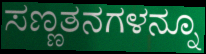
ಸಣ್ಣತನಗಳನ್ನೂ